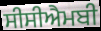
ਸੀਸੀਐਮਬੀ